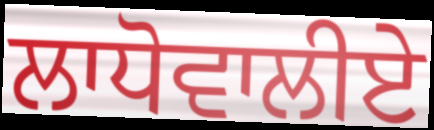
ਲਾਧੋਵਾਲੀਏ